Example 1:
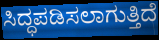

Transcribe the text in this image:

ಸಿದ್ಧಪಡಿಸಲಾಗುತ್ತಿದೆ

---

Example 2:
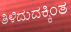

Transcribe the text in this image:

ತಿಳಿದುದಕ್ಕಿಂತ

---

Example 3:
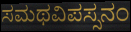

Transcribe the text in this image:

ಸಮಥವಿಪಸ್ಸನಂ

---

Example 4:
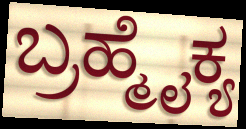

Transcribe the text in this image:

ಬ್ರಹ್ಮೈಕ್ಯ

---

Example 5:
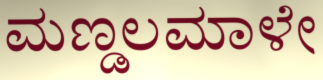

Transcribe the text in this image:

ಮಣ್ಡಲಮಾಳೇ